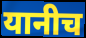
यानीच